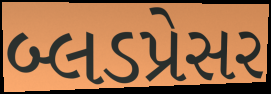
બ્લડપ્રેસર